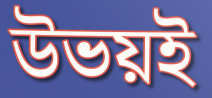
উভয়ই